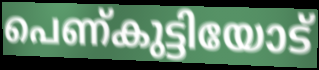
പെണ്കുട്ടിയോട്